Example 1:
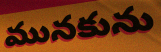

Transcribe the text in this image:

మునకును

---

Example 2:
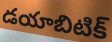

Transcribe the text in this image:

డయాబిటిక్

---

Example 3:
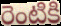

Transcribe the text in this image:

రెంటికి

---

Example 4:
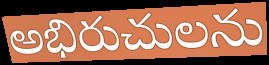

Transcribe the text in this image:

అభిరుచులను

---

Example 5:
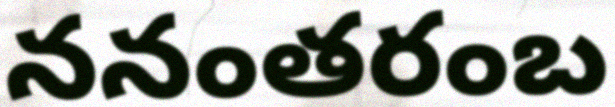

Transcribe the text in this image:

ననంతరంబ